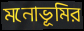
মনোভূমির